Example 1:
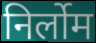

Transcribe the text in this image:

निर्लोम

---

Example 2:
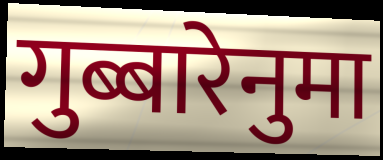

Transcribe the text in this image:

गुब्बारेनुमा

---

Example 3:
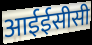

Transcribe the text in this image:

आईईसीसी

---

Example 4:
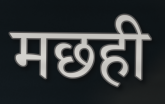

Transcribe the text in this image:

मछही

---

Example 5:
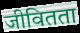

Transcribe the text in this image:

जीवितता